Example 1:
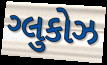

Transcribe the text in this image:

ગ્લુકોઝ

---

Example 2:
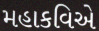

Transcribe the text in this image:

મહાકવિએ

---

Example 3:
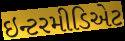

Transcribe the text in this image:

ઇન્ટરમીડિએટ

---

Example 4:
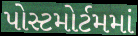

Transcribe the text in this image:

પોસ્ટમોર્ટમમાં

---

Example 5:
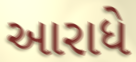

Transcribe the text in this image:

આરાધે